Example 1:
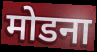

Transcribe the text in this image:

मोडना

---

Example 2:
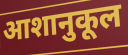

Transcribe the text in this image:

आशानुकूल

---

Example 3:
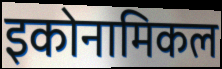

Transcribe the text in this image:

इकोनामिकल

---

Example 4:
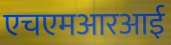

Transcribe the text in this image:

एचएमआरआई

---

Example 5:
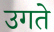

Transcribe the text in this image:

उगते